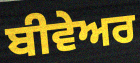
ਬੀਵੇਅਰ